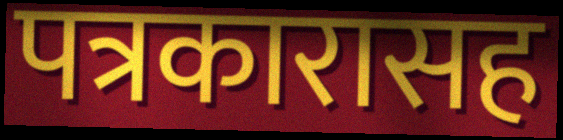
पत्रकारासह